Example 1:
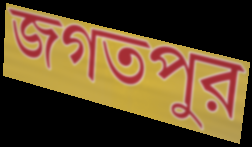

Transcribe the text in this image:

জগতপুর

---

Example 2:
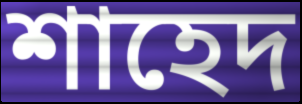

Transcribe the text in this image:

শাহেদ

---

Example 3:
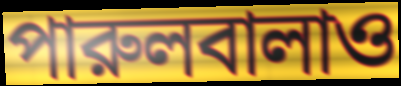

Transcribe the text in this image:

পারুলবালাও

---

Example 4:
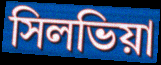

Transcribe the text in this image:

সিলভিয়া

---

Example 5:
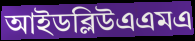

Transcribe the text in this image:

আইডব্লিউএএমএ